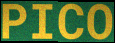
PICO